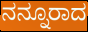
ನನ್ನೂರಾದ